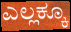
ಎಲ್ಲಕ್ಕೂ